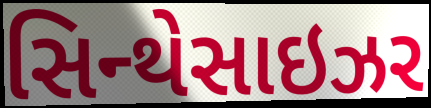
સિન્થેસાઇઝર